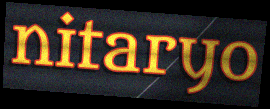
nitaryo